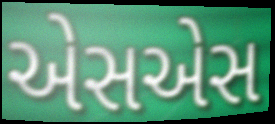
એસએસ